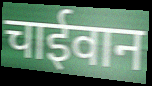
चाईवान